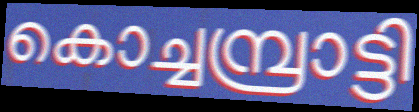
കൊച്ചമ്പ്രാട്ടി